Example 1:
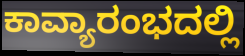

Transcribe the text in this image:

ಕಾವ್ಯಾರಂಭದಲ್ಲಿ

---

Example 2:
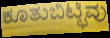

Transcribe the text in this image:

ಕೂತುಬಿಟ್ಟೆವು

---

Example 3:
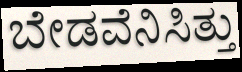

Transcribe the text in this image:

ಬೇಡವೆನಿಸಿತ್ತು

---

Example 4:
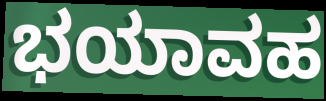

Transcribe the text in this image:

ಭಯಾವಹ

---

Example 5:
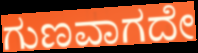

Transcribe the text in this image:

ಗುಣವಾಗದೇ